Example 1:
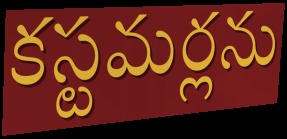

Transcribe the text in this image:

కస్టమర్లను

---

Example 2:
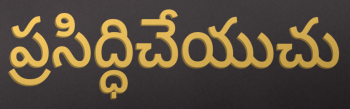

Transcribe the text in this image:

ప్రసిద్ధిచేయుచు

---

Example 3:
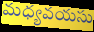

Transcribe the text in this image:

మధ్యవయసు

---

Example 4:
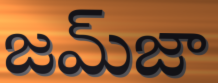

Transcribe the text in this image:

జమ్‌జా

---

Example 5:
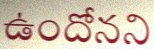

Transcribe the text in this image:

ఉందోనని